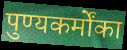
पुण्यकर्मोंका